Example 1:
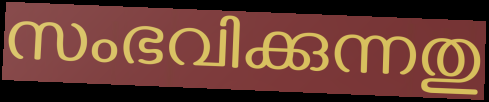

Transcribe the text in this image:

സംഭവിക്കുന്നതു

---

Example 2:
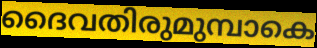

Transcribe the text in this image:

ദൈവതിരുമുമ്പാകെ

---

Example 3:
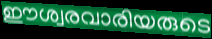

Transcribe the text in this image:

ഈശ്വരവാരിയരുടെ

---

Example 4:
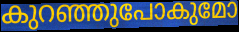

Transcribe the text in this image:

കുറഞ്ഞുപോകുമോ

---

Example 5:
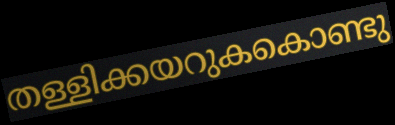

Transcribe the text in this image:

തള്ളിക്കയറുകകൊണ്ടു